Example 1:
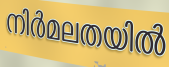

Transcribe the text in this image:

നിർമലതയിൽ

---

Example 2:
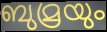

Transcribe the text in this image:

ബുമ്രയും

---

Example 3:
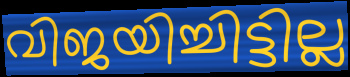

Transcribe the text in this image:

വിജയിച്ചിട്ടില്ല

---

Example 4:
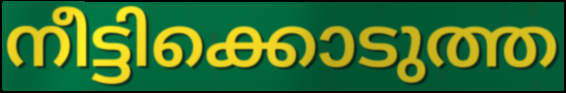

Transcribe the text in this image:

നീട്ടിക്കൊടുത്ത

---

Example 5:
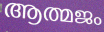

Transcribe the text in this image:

ആത്മജം